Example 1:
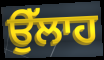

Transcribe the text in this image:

ਉੱਲਾਹ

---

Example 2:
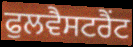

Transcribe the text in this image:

ਫੁਲਵੈਸਟਰੈਂਟ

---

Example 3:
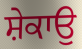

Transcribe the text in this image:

ਸ਼ੇਕਾਉ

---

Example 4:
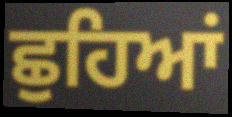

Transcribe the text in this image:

ਛੁਹਿਆਂ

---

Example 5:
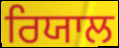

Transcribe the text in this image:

ਰਿਯਾਲ